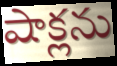
షాక్లను